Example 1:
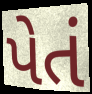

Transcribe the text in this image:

પેતં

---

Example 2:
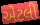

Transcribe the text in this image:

એટલી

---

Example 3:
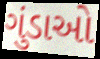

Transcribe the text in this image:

ગુંડાઓ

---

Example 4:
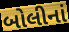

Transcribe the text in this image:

બોલીનાં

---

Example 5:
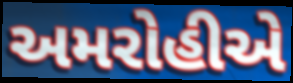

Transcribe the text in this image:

અમરોહીએ